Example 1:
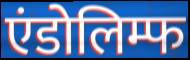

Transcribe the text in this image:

एंडोलिम्फ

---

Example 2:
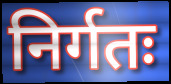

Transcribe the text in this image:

निर्गतः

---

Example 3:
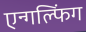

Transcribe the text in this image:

एन्गल्फिंग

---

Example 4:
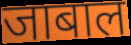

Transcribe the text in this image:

जाबाल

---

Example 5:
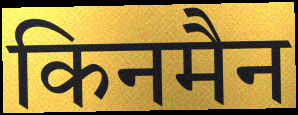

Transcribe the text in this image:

किनमैन